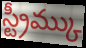
స్ట్రీమ్కు